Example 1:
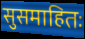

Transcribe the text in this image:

सुसमाहितः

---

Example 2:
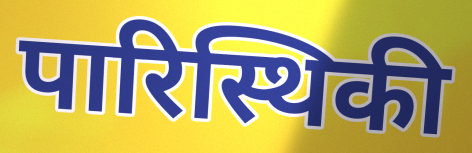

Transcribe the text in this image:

पारिस्थिकी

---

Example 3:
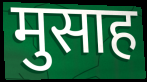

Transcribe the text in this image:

मुसाह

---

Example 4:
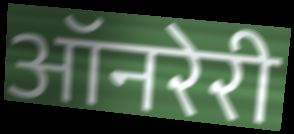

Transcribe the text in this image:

ऑनरेरी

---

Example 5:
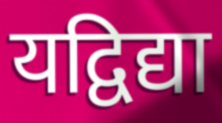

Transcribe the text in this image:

यद्विद्या